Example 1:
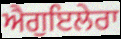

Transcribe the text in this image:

ਐਗੁਇਲੇਰਾ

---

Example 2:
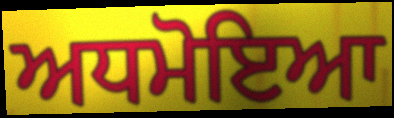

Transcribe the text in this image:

ਅਧਮੋਇਆ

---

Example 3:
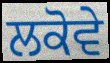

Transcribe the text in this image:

ਲਕੋਵੇ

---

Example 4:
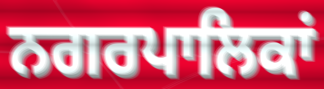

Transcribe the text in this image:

ਨਗਰਪਾਲਿਕਾਂ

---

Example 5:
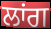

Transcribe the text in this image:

ਲਾਂਗ